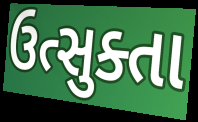
ઉત્સુક્તા